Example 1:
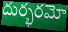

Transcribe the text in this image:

దుర్భరమో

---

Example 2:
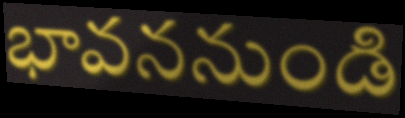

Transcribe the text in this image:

భావననుండి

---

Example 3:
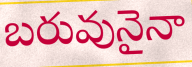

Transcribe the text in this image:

బరువునైనా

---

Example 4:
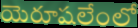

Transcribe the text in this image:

యెరూషలేంలో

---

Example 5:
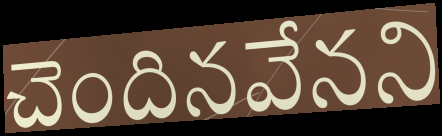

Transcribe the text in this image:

చెందినవేనని